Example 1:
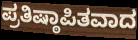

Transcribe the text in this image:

ಪ್ರತಿಷ್ಠಾಪಿತವಾದ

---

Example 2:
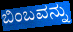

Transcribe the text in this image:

ಬಿಂಬವನ್ನು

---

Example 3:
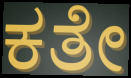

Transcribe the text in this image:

ಕತೇ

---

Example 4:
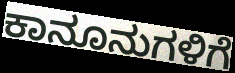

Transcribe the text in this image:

ಕಾನೂನುಗಳಿಗೆ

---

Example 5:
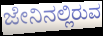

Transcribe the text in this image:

ಜೇನಿನಲ್ಲಿರುವ